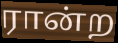
ரான்ற